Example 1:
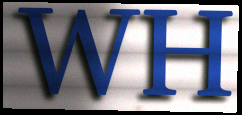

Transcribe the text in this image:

WH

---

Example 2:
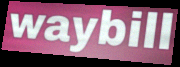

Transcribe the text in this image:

waybill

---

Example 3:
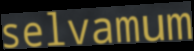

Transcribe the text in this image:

selvamum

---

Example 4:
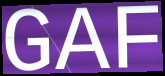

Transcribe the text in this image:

GAF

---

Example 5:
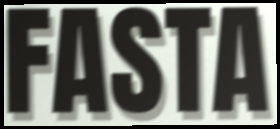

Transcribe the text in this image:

FASTA